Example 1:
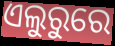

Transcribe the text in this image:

ଏଲୁରୁରେ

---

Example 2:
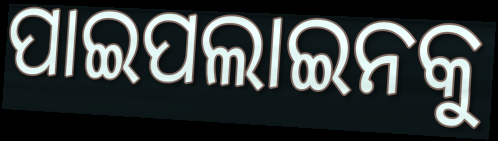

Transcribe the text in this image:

ପାଇପଲାଇନକୁ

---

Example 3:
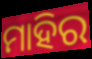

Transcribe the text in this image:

ମାହିର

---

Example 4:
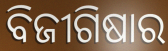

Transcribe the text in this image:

ବିଜୀଗିଷାର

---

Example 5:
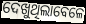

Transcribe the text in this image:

ଦେଖୁଥିଲାବେଳେ